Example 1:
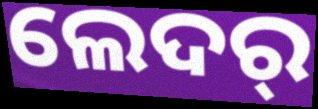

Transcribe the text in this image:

ଲେଦର୍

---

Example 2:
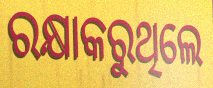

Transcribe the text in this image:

ରକ୍ଷାକରୁଥିଲେ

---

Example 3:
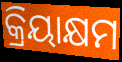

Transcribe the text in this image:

କ୍ରିୟାକ୍ଷମ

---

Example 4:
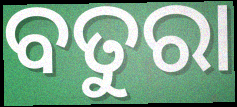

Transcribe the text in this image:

ବତୁରା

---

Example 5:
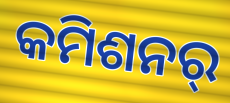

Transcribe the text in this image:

କମିଶନର୍